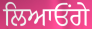
ਲਿਆਓਂਗੇ